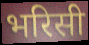
भरिसी